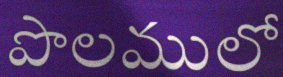
పొలములో